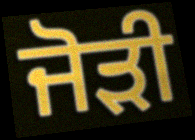
ਜੋੜੀ